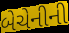
બેચેનીની